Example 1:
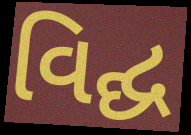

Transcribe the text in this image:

વિદ્ઘ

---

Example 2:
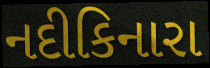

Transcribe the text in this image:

નદીકિનારા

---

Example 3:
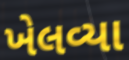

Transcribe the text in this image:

ખેલવ્યા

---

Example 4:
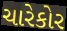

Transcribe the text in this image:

ચારેકોર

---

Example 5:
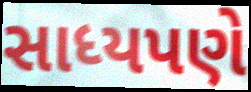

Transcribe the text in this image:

સાધ્યપણે